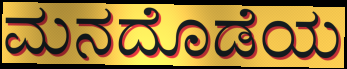
ಮನದೊಡೆಯ